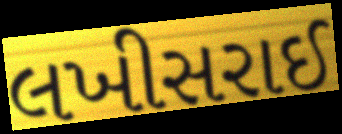
લખીસરાઈ